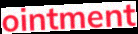
ointment